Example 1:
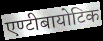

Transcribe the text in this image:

एण्टीबायोटिक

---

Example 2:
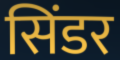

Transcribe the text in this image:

सिंडर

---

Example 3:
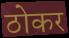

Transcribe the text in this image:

ठोकर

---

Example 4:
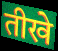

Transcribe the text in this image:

तीखे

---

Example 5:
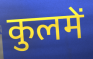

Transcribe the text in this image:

कुलमें